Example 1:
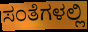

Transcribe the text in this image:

ಸಂತೆಗಳಲ್ಲಿ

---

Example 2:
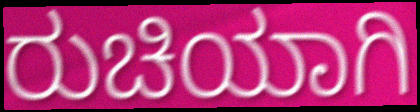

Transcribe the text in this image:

ರುಚಿಯಾಗಿ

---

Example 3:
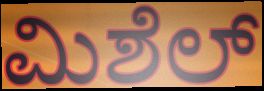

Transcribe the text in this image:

ಮಿಶೆಲ್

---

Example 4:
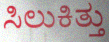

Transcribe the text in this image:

ಸಿಲುಕಿತ್ತು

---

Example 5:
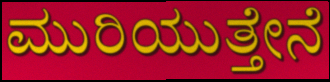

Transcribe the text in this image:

ಮುರಿಯುತ್ತೇನೆ